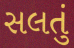
સલતું